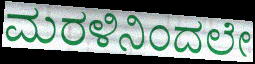
ಮರಳಿನಿಂದಲೇ